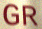
GR